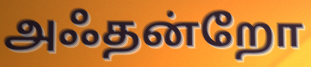
அஃதன்றோ